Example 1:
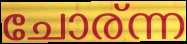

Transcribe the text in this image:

ചോര്ന്ന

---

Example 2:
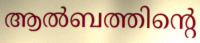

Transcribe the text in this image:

ആൽബത്തിന്റെ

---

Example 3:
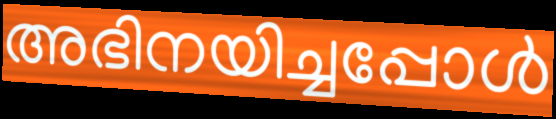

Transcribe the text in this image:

അഭിനയിച്ചപ്പോൾ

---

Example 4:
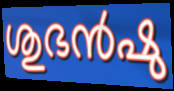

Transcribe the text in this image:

ശുഭൻഷു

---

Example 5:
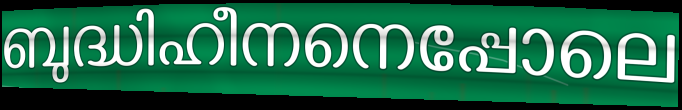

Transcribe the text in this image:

ബുദ്ധിഹീനനെപ്പോലെ